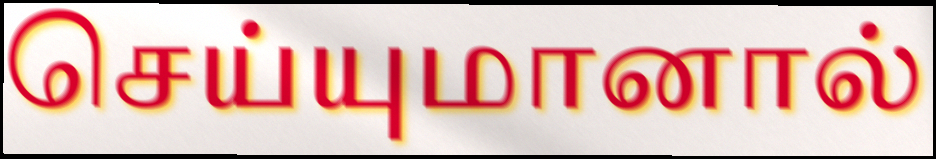
செய்யுமானால்